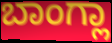
ಬಾಂಗ್ಲಾ